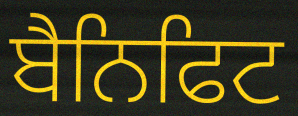
ਬੈਨਿਫਿਟ